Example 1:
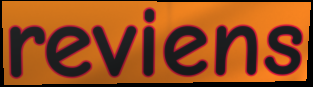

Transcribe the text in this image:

reviens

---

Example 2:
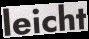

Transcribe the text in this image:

leicht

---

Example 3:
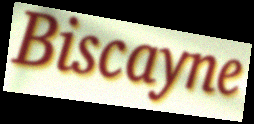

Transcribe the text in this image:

Biscayne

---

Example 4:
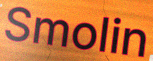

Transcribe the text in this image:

Smolin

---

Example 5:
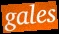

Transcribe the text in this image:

gales